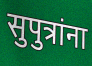
सुपुत्रांना